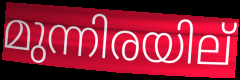
മുന്നിരയില്